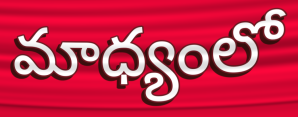
మాధ్యంలో